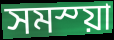
সমস্য়া